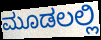
ಮೂಡಲಲ್ಲಿ